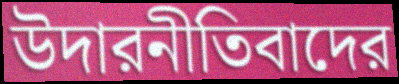
উদারনীতিবাদের